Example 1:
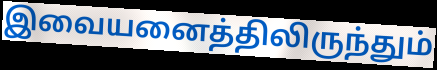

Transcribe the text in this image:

இவையனைத்திலிருந்தும்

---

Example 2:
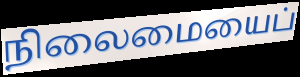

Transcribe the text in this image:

நிலைமையைப்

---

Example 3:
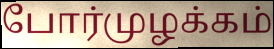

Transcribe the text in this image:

போர்முழக்கம்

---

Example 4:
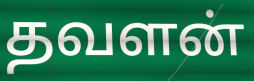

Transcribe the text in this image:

தவளன்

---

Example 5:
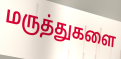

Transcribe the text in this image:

மருத்துகளை